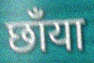
छाँया